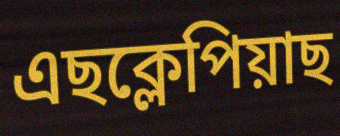
এছক্লেপিয়াছ